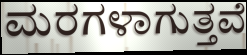
ಮರಗಳಾಗುತ್ತವೆ